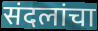
संदलांचा